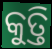
କୁତ୍ତି